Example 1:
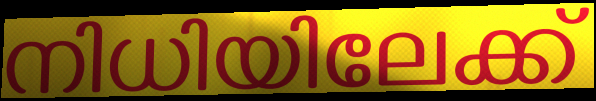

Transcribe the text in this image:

നിധിയിലേക്ക്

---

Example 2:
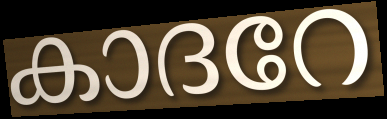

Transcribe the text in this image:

കാദറേ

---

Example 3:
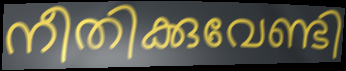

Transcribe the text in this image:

നീതിക്കുവേണ്ടി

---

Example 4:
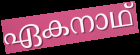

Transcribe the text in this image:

ഏകനാഥ്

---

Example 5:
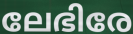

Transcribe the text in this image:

ലേഭിരേ